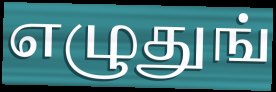
எழுதுங்